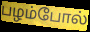
பழம்போல்